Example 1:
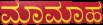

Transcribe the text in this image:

ಮಾಮಾಹ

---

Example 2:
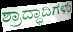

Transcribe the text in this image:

ಶ್ರಾದ್ಧಾದಿಗಳು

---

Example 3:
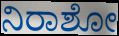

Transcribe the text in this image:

ನಿರಾಶೋ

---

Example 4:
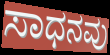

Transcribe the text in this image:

ಸಾಧನವು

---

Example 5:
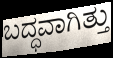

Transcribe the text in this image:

ಬದ್ಧವಾಗಿತ್ತು